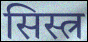
सिस्त्र